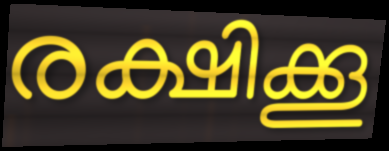
രക്ഷിക്കൂ